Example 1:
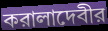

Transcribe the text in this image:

করালাদেবীর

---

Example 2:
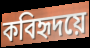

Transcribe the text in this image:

কবিহৃদয়ে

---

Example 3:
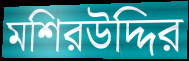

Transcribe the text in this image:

মশিরউদ্দির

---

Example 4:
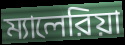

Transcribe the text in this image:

ম্যালেরিয়া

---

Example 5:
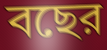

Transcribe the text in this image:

বছের